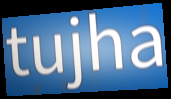
tujha